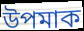
উপমাক